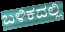
ಬಳಿಕದಲ್ಲಿ